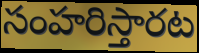
సంహరిస్తారట